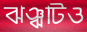
ঝঞ্ঝাটও